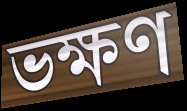
ভক্ষণ